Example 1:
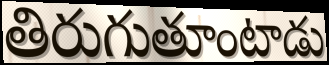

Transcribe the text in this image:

తిరుగుతూంటాడు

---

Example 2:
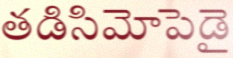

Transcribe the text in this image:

తడిసిమోపెడై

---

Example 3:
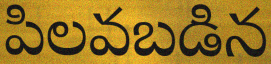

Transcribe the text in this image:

పిలవబడిన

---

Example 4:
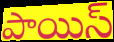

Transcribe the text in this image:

పాయిస్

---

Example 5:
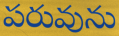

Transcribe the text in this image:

పరువును